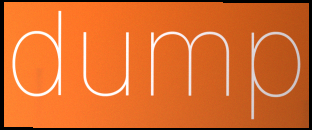
dump